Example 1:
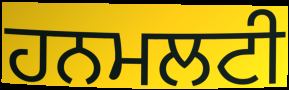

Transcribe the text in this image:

ਹਨਮਲਟੀ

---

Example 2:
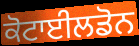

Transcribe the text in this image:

ਕੋਟਾਈਲਡੋਨ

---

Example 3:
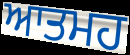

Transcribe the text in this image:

ਆਤਮਹ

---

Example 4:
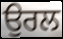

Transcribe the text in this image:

ਉਰਲ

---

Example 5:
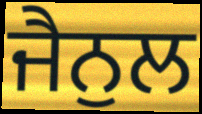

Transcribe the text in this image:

ਜੈਨੁਲ